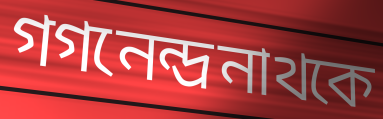
গগনেন্দ্রনাথকে